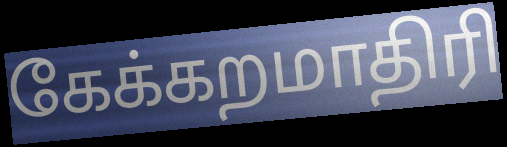
கேக்கறமாதிரி